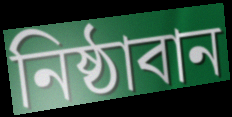
নিষ্ঠাবান